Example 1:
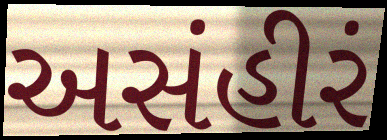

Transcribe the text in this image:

અસંહીરં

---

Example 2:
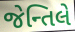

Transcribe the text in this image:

જેન્તિલે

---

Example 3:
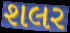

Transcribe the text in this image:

શલર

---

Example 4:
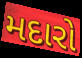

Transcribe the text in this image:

મદારો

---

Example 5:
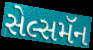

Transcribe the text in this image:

સેલ્સમૅન